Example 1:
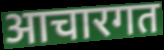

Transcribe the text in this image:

आचारगत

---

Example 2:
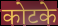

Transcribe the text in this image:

कोटके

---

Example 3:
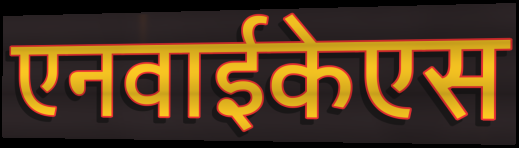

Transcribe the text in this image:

एनवाईकेएस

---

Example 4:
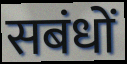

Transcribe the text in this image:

सबंधों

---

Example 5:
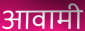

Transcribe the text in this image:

आवामी